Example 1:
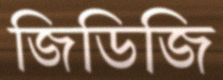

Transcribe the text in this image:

জিডিজি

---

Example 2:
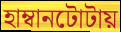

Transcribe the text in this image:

হাম্বানটোটায়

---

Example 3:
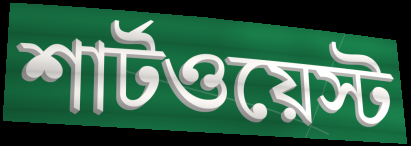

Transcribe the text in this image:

শার্টওয়েস্ট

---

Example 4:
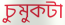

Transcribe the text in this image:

চুমুকটা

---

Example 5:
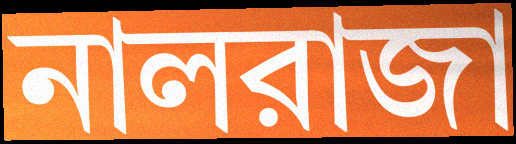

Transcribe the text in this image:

নালরাজা